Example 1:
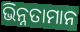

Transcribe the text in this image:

ଭିନ୍ନତାମାନ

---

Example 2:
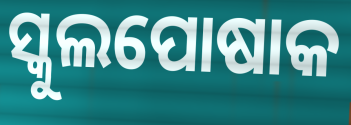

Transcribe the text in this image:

ସ୍କୁଲପୋଷାକ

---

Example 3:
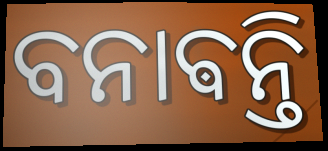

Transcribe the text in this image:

ବନାଵନ୍ତି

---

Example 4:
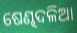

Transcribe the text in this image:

ଷେଣ୍ଢଦଳିଆ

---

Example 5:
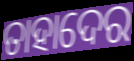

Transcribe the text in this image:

ତାହାଦେର